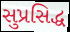
સુપ્રસિદ્ધ